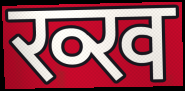
ख्ख